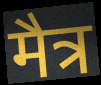
मैत्र